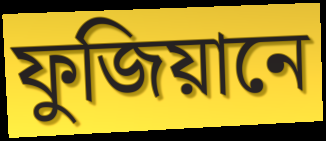
ফুজিয়ানে